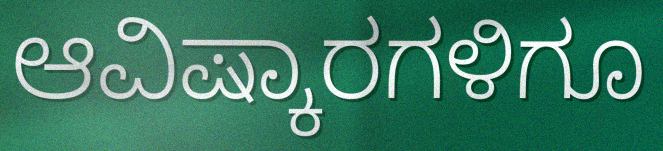
ಆವಿಷ್ಕಾರಗಳಿಗೂ